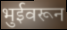
भुईवरून